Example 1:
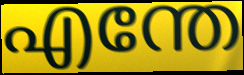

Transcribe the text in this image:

എന്തേ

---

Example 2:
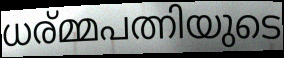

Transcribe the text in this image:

ധര്മ്മപത്നിയുടെ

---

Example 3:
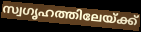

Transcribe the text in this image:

സ്വഗൃഹത്തിലേയ്ക്ക്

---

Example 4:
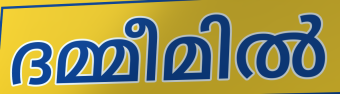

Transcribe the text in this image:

ദമ്മീമിൽ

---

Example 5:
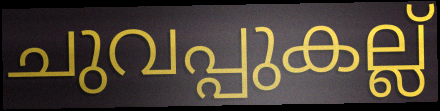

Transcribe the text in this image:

ചുവപ്പുകല്ല്